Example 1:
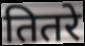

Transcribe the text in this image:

तितरे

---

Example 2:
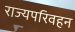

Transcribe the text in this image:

राज्यपरिवहन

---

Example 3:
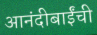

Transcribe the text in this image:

आनंदीबाईंची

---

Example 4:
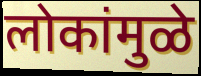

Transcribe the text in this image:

लोकांमुळे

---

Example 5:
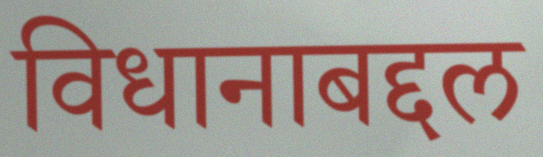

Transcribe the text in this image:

विधानाबद्दल